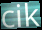
cik